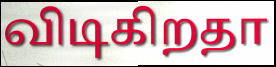
விடிகிறதா